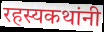
रहस्यकथांनी